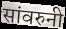
सांवरुनी